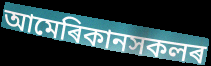
আমেৰিকানসকলৰ